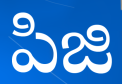
పిజి